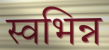
स्वभिन्न